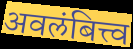
अवलंबित्त्व